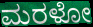
ಮರಳೋ